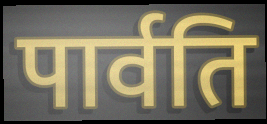
पार्वति